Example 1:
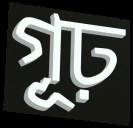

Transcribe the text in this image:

গূঢ়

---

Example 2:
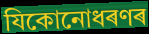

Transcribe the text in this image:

যিকোনোধৰণৰ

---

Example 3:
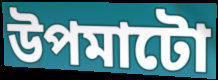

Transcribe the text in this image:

উপমাটো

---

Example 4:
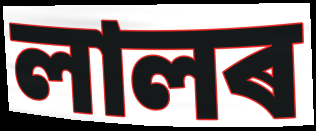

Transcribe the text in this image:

লালৰ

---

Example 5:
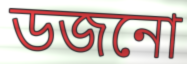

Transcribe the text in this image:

ডজনো